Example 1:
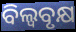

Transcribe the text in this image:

ବିଲ୍ୱବୃକ୍ଷ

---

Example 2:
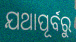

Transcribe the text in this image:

ଯଥାପୂର୍ବରୁ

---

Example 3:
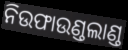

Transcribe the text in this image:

ନିଉଫାଉଣ୍ଡଲାଣ୍ଡ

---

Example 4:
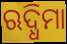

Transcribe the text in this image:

ଋଦ୍ଧିମା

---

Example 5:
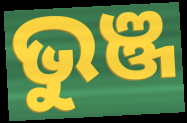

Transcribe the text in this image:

ଭୁଞ୍ଜ